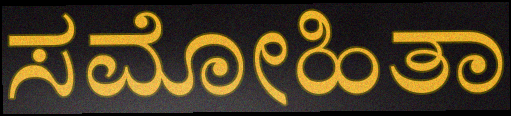
ಸಮೋಹಿತಾ